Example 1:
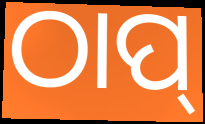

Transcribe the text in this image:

ଠାପ୍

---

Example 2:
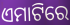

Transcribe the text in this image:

ଏମାଟିରେ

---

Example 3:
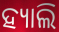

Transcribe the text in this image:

ହ୍ୟାଲି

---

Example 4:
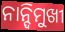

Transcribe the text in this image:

ନାନ୍ଦିମୁଖୀ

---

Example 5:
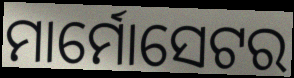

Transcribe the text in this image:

ମାର୍ମୋସେଟର